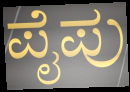
ಪೈಪು